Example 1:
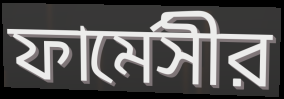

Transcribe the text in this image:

ফার্মেসীর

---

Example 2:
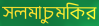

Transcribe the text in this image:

সলমাচুমকির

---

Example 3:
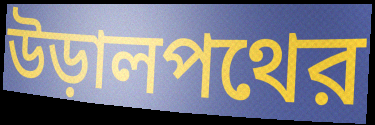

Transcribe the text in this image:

উড়ালপথের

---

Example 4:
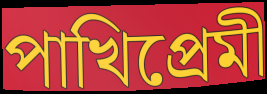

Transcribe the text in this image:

পাখিপ্রেমী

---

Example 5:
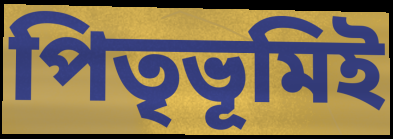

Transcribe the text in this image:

পিতৃভূমিই